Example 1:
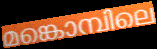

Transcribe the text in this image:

മങ്കൊമ്പിലെ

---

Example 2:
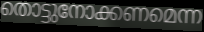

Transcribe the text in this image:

തൊട്ടുനോക്കണമെന്ന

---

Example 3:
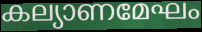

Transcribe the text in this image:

കല്യാണമേഘം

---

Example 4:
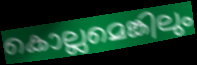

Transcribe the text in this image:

കൊല്ലമെങ്കിലും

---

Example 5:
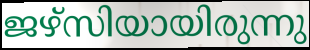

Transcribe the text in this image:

ജഴ്സിയായിരുന്നു